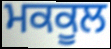
ਮਕਕੂਲ